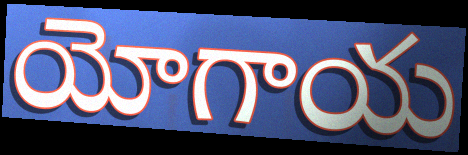
యోగాయ